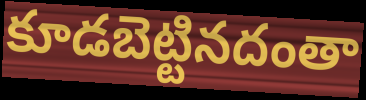
కూడబెట్టినదంతా